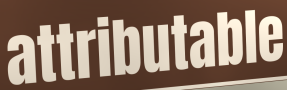
attributable